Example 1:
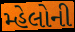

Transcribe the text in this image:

મ્હેલોની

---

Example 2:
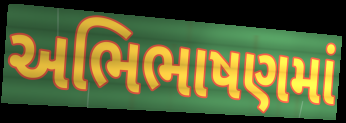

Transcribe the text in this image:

અભિભાષણમાં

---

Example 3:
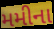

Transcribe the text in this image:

મમીના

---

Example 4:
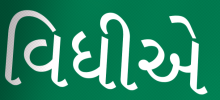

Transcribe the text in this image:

વિધીએ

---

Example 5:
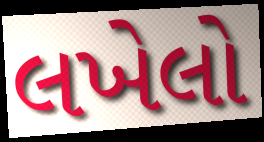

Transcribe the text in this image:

લખેલો